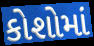
કોશોમાં